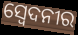
ସ୍ୱେଦନୀର